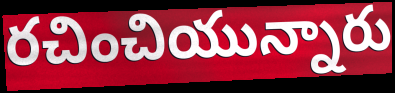
రచించియున్నారు